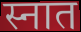
स्नात